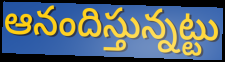
ఆనందిస్తున్నట్టు